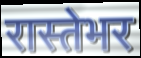
रास्तेभर